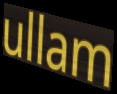
ullam